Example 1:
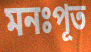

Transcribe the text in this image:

মনঃপূত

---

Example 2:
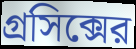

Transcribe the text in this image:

গ্রসিক্সের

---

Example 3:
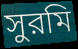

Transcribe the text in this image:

সুরমি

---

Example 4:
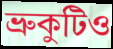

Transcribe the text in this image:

ভ্রুকুটিও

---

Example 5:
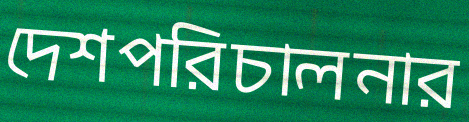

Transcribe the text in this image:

দেশপরিচালনার